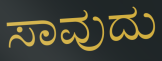
ಸಾವುದು